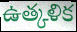
ఉత్కళిక